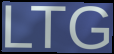
LTG